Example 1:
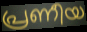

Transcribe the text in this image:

പ്രണീയ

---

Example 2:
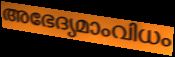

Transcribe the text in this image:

അഭേദ്യമാംവിധം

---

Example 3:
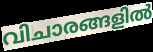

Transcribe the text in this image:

വിചാരങ്ങളിൽ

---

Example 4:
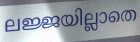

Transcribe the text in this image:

ലജ്ജയില്ലാതെ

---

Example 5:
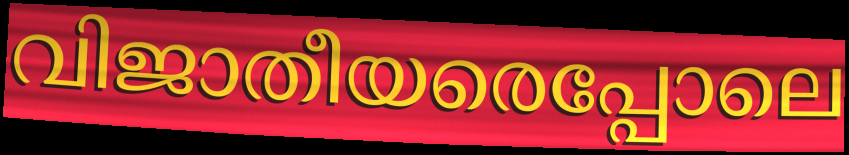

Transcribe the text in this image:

വിജാതീയരെപ്പോലെ